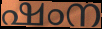
ഷംന